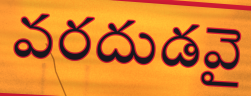
వరదుడవై